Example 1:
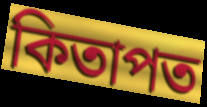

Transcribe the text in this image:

কিতাপত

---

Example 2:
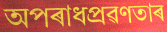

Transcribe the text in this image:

অপৰাধপ্ৰৱণতাৰ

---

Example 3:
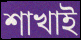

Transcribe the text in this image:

শাখাই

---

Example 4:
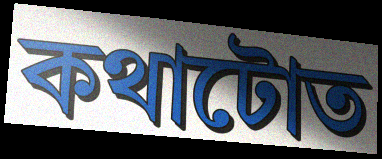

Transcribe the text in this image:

কথাটোত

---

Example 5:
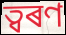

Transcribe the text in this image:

ত্বৰণ